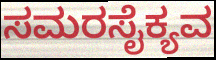
ಸಮರಸೈಕ್ಯವ